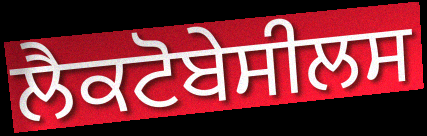
ਲੈਕਟੋਬੇਸੀਲਸ